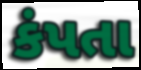
કંપતા